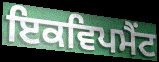
ਇਕਵਿਪਮੈਂਟ